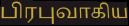
பிரபுவாகிய